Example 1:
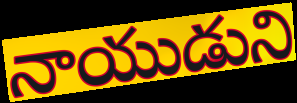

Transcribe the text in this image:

నాయుడుని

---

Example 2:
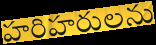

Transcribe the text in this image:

హరిహరులను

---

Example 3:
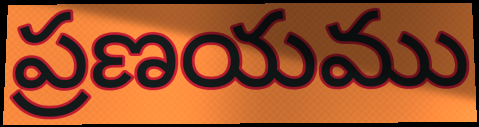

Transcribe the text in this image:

ప్రణయము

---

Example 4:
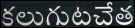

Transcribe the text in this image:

కలుగుటచేత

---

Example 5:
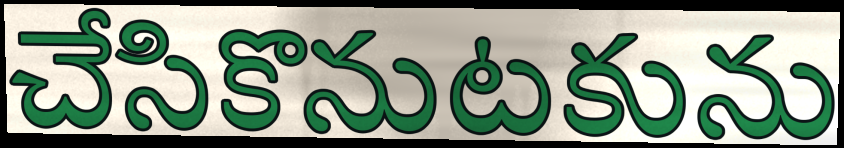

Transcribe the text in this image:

చేసికొనుటకును